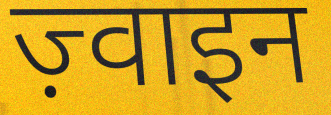
ज़्वाइन